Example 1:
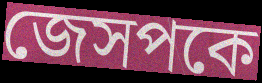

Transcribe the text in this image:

জেসপকে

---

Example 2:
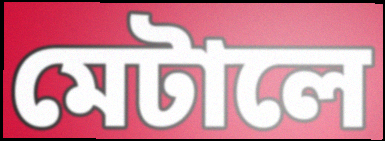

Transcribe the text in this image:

মেটালে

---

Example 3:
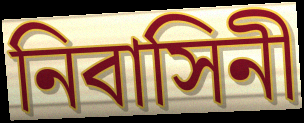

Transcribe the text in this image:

নিবাসিনী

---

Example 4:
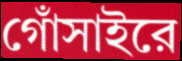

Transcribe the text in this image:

গোঁসাইরে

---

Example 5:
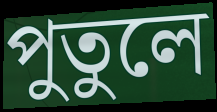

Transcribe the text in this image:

পুতুলে